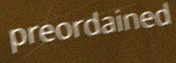
preordained